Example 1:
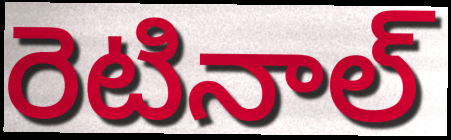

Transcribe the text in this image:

రెటినాల్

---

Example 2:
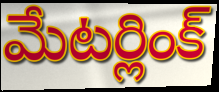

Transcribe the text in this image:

మేటర్లింక్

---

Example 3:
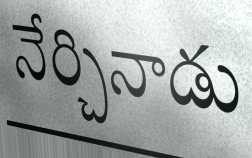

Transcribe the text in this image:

నేర్చినాడు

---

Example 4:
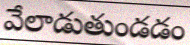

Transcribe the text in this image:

వేలాడుతుండడం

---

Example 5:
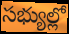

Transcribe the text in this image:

సభ్యుల్లో